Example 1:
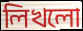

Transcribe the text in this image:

লিখলো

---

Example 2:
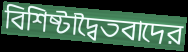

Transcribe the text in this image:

বিশিষ্টাদ্বৈতবাদের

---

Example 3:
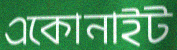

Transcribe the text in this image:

একোনাইট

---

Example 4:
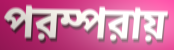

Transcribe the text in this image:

পরম্পরায়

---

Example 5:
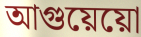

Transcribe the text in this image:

আগুয়েয়ো